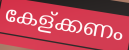
കേള്ക്കണം